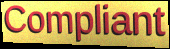
Compliant